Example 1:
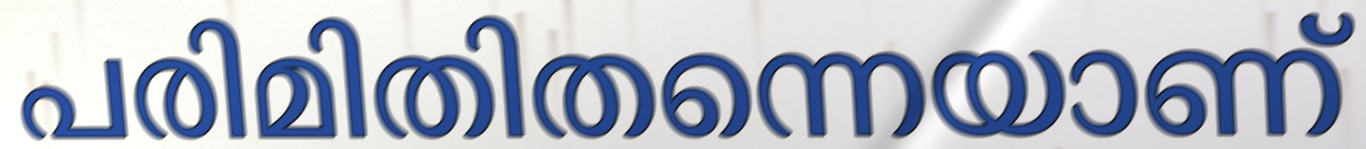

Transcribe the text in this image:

പരിമിതിതന്നെയാണ്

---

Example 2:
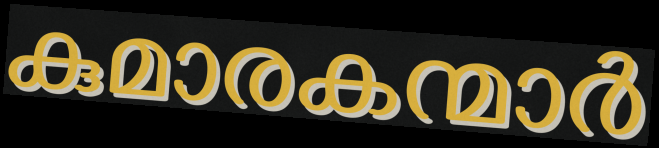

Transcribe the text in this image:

കുമാരകന്മാർ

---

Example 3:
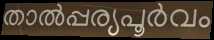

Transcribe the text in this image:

താൽപ്പര്യപൂർവം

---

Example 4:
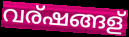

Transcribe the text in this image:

വര്ഷങ്ങള്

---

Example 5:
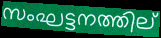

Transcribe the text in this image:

സംഘട്ടനത്തില്